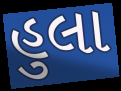
હુલા